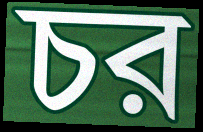
চর